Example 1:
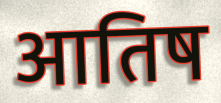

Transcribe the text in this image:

आतिष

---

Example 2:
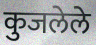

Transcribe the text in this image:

कुजलेले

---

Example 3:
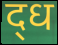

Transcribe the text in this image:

द्ध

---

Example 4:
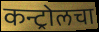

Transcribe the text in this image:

कन्ट्रोलचा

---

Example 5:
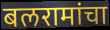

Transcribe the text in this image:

बलरामांचा